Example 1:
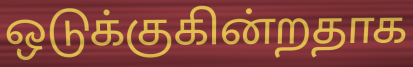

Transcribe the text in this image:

ஒடுக்குகின்றதாக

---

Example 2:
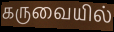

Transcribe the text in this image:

கருவையில்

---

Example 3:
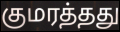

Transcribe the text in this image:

குமரத்தது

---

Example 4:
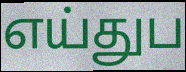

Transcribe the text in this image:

எய்துப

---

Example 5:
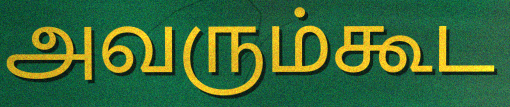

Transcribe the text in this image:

அவரும்கூட